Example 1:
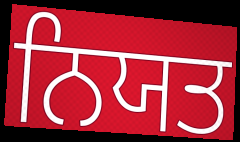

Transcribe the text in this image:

ਨਿਯਤ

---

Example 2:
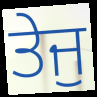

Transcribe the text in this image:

ਤੇਜੁ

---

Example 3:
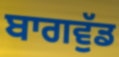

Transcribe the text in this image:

ਬਾਗਵੁੱਡ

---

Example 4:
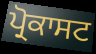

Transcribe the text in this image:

ਪ੍ਰੋਕਾਸਟ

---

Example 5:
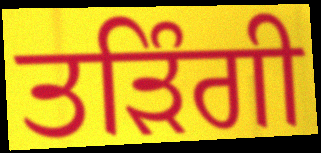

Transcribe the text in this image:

ਤੜਿੰਗੀ